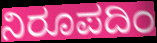
ನಿರೂಪದಿಂ